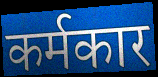
कर्मकार